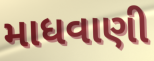
માધવાણી